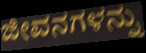
ಜೀವನಗಳನ್ನು